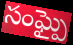
సంఘ్పై